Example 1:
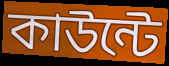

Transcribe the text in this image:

কাউন্টে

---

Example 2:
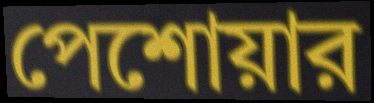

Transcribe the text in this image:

পেশোয়ার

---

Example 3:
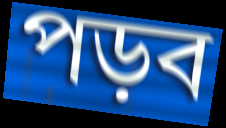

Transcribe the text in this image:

পড়ব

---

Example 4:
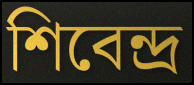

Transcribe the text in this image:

শিবেন্দ্র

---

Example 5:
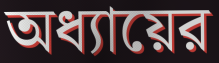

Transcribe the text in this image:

অধ্যায়ের